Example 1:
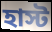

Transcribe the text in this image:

হাস্ট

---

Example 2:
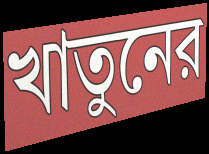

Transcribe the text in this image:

খাতুনের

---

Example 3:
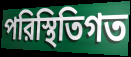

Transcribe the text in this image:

পরিস্থিতিগত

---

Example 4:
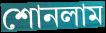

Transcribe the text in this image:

শোনলাম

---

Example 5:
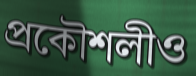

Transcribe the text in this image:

প্রকৌশলীও